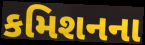
કમિશનના